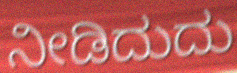
ನೀಡಿದುದು